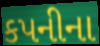
કપનીના